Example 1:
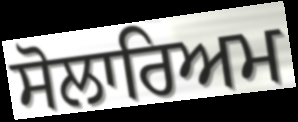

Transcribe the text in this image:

ਸੋਲਾਰਿਅਮ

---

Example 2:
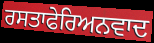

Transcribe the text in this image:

ਰਸਤਾਫੇਰਿਅਨਵਾਦ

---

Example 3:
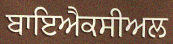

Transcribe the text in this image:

ਬਾਇਐਕਸੀਅਲ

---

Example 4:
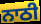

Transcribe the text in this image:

ਨਾਠੀ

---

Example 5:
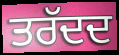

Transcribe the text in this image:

ਤਰੱਦਦ